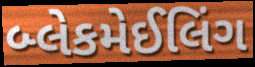
બ્લેકમેઈલિંગ